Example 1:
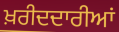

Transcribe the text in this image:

ਖ਼ਰੀਦਦਾਰੀਆਂ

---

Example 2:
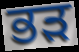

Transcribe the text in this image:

ਭੜ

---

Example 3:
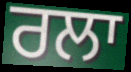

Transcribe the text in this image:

ਰਲਾ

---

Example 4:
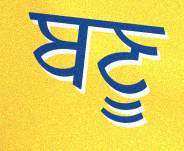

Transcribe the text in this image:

ਬਣੂ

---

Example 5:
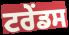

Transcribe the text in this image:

ਟਰੇਂਡਸ